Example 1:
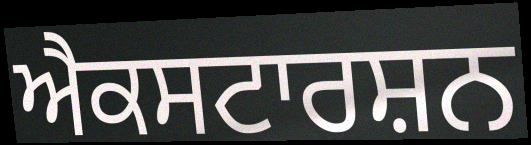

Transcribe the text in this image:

ਐਕਸਟਾਰਸ਼ਨ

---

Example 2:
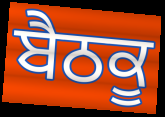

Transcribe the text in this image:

ਬੈਠਕੂ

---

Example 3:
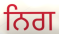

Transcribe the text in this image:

ਨਿਗ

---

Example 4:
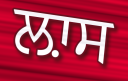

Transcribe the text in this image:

ਲ਼ਾਸ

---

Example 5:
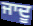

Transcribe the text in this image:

ਜਾਦੂ